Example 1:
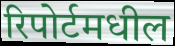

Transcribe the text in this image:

रिपोर्टमधील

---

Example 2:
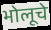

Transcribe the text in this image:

भोलूचे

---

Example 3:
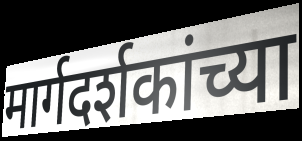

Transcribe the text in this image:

मार्गदर्शकांच्या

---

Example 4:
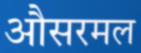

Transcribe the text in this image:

औसरमल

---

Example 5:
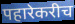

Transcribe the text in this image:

पहारेकरीच